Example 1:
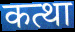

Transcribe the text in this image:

कत्था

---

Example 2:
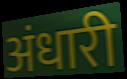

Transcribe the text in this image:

अंधारी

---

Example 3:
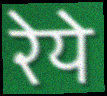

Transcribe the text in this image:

रेये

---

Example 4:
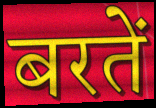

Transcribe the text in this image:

बरतें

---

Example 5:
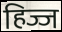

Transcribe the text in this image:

हिज्ज